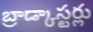
బ్రాడ్కాస్టర్లు